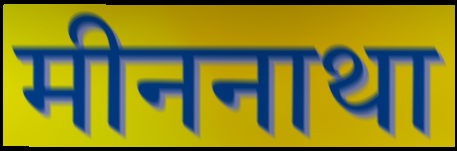
मीननाथा